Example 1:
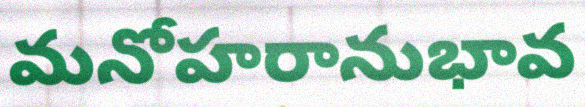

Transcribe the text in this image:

మనోహరానుభావ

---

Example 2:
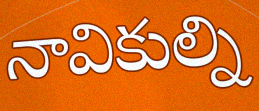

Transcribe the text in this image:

నావికుల్ని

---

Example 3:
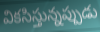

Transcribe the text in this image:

వికసిస్తున్నప్పుడు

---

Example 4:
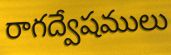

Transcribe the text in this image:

రాగద్వేషములు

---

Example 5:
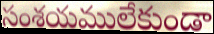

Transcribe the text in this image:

సంశయములేకుండా